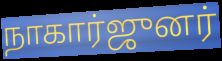
நாகார்ஜுனர்